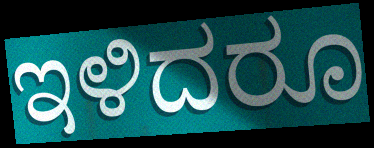
ಇಳಿದರೂ